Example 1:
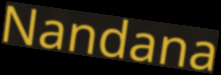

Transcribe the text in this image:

Nandana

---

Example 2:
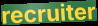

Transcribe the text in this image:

recruiter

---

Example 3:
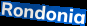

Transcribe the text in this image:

Rondonia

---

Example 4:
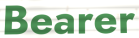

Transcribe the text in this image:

Bearer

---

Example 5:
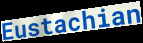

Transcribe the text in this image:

Eustachian